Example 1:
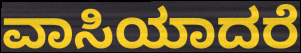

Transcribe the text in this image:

ವಾಸಿಯಾದರೆ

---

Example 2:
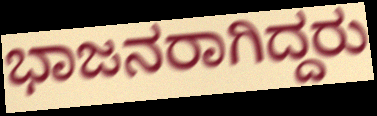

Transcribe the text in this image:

ಭಾಜನರಾಗಿದ್ದರು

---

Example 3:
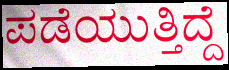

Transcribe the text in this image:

ಪಡೆಯುತ್ತಿದ್ದೆ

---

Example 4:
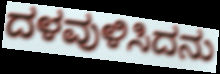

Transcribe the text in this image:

ದಳವುಳಿಸಿದನು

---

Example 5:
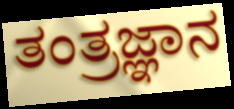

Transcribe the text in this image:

ತಂತ್ರಜ್ಞಾನ